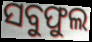
ସବୁଫୁଲ